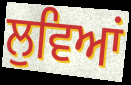
ਲੁਵਿਆਂ